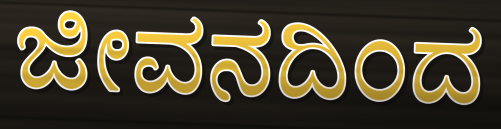
ಜೀವನದಿಂದ